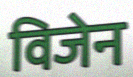
विजेन